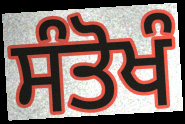
ਸੰਤੋਖੰ